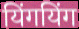
यिंगयिंग